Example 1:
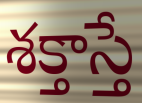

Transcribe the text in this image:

శక్తాస్తే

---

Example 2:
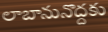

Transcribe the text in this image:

లాబానునొద్దకు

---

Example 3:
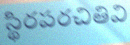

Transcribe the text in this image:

స్థిరపరచితివి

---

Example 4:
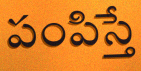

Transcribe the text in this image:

పంపిస్తే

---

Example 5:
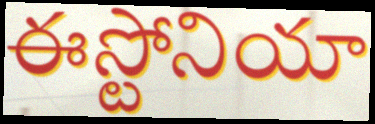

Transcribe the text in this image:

ఈస్టోనియా